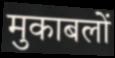
मुकाबलों